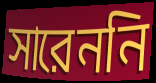
সারেননি